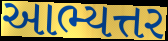
આભ્યત્તર